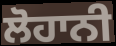
ਲੋਹਾਨੀ